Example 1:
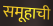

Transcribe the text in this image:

समूहाची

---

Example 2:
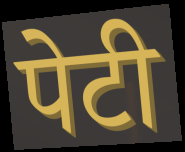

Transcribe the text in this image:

पेटी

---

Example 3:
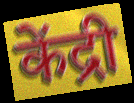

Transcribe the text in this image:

केंद्री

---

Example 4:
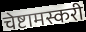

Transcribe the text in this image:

चेष्टामस्करी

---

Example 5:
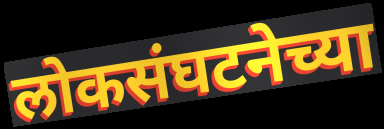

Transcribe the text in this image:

लोकसंघटनेच्या